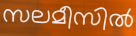
സലമീസിൽ